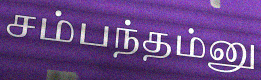
சம்பந்தம்னு